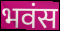
भवंस